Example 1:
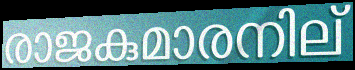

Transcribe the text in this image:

രാജകുമാരനില്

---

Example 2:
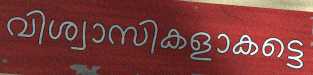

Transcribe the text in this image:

വിശ്വാസികളാകട്ടെ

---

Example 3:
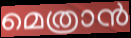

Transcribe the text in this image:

മെത്രാൻ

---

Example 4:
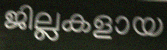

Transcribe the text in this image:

ജില്ലകളായ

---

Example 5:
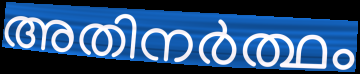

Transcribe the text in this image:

അതിനർത്ഥം